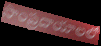
సాంప్రదాయాలలో